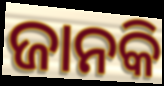
ଜାନକି